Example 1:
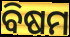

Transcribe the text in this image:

ବିଷମ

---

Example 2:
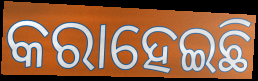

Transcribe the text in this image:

କରାହେଇଛି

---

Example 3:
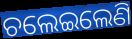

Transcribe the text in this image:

ଚଲେଇଲେଣି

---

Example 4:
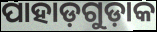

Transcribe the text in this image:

ପାହାଡ଼ଗୁଡ଼ାକ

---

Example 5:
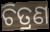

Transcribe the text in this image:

ଚିତ୍ରଣ